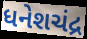
ધનેશચંદ્ર